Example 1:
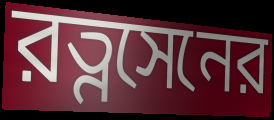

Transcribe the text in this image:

রত্নসেনের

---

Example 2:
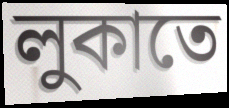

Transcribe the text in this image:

লুকাতে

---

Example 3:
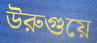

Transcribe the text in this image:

উরুগুয়ে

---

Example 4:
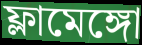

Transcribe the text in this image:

ফ্লামেঙ্গো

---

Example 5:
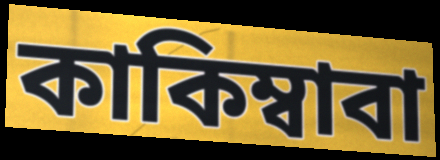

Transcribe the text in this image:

কাকিম্বাবা